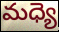
మధ్యె